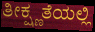
ತೀಕ್ಷ್ಣತೆಯಲ್ಲಿ